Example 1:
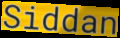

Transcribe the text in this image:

Siddan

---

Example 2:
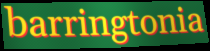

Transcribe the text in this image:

barringtonia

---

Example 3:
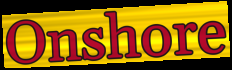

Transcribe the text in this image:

Onshore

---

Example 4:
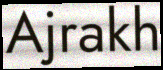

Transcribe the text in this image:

Ajrakh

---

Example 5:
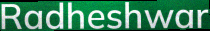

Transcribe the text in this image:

Radheshwar